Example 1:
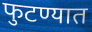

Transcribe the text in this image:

फुटण्यात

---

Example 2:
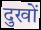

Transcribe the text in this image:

दुखों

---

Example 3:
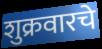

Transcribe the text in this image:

शुक्रवारचे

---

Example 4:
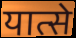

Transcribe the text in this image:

यात्से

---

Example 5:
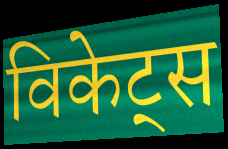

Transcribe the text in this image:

विकेट्स